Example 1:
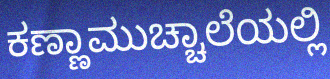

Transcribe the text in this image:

ಕಣ್ಣಾಮುಚ್ಚಾಲೆಯಲ್ಲಿ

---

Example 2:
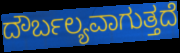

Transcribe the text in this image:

ದೌರ್ಬಲ್ಯವಾಗುತ್ತದೆ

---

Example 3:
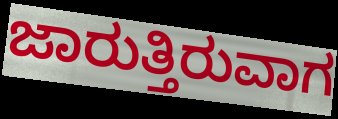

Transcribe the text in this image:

ಜಾರುತ್ತಿರುವಾಗ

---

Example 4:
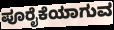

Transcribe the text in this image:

ಪೂರೈಕೆಯಾಗುವ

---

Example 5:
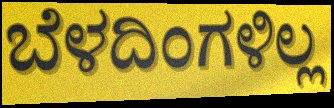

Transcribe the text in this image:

ಬೆಳದಿಂಗಳಿಲ್ಲ